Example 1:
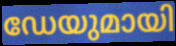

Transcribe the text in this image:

ഡേയുമായി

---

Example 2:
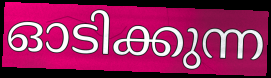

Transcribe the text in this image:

ഓടിക്കുന്ന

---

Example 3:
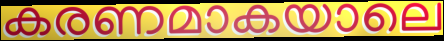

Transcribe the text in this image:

കരണമാകയാലെ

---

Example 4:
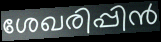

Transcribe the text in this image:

ശേഖരിപ്പിൻ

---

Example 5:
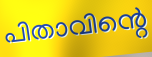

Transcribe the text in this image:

പിതാവിന്റെ